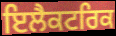
ਇਲੈਕਟਰਿਕ